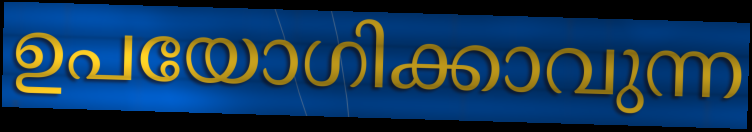
ഉപയോഗിക്കാവുന്ന